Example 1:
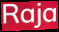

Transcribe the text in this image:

Raja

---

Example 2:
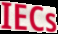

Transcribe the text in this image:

IECs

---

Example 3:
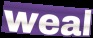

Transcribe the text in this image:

weal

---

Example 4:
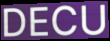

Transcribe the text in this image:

DECU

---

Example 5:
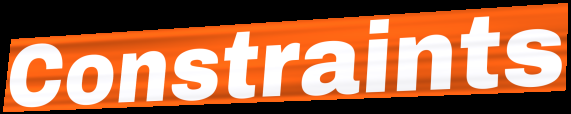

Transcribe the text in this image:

Constraints